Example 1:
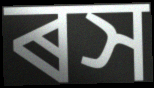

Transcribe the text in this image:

ৰস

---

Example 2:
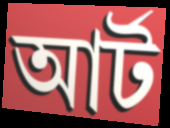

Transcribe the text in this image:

আৰ্ট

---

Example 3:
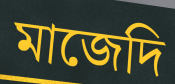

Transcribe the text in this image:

মাজেদি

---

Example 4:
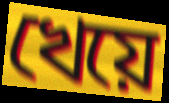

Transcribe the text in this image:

খেয়ে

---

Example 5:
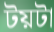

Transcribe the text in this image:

টয়টা